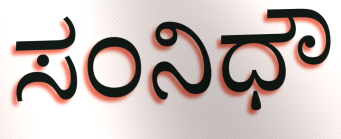
ಸಂನಿಧೌ